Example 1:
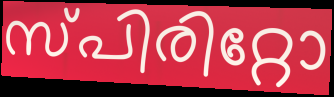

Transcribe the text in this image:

സ്പിരിറ്റോ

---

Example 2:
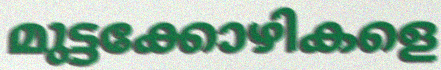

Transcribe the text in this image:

മുട്ടക്കോഴികളെ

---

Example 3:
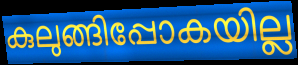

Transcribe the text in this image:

കുലുങ്ങിപ്പോകയില്ല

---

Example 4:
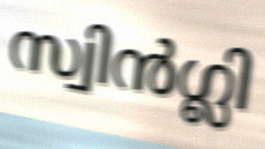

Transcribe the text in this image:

സ്വിൻഗ്ലി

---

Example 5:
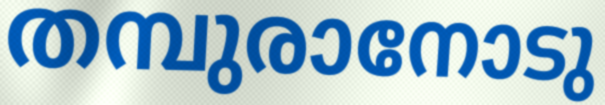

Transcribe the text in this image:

തമ്പുരാനോടു